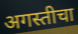
अगस्तीचा